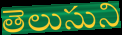
తెలుసుని